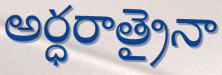
అర్ధరాత్రైనా